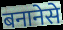
बनानेसे